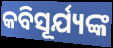
କବିସୂର୍ଯ୍ୟଙ୍କ